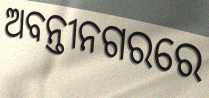
ଅବନ୍ତୀନଗରରେ